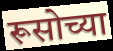
रूसोच्या